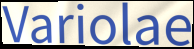
Variolae